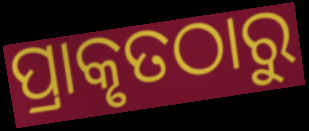
ପ୍ରାକୃତଠାରୁ